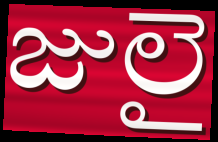
జులై